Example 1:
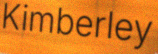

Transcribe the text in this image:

Kimberley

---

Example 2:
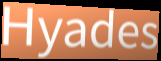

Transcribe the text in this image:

Hyades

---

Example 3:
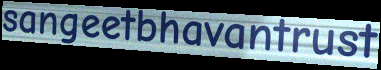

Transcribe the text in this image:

sangeetbhavantrust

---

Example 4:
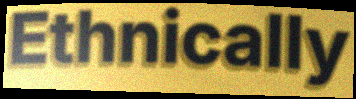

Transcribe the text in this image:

Ethnically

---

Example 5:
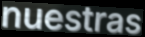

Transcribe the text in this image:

nuestras